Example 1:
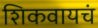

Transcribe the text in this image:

शिकवायचं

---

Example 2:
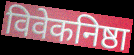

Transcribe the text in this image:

विवेकनिष्ठा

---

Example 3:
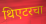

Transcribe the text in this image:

थिएटरचा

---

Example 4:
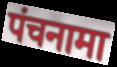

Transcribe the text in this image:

पंचनामा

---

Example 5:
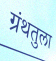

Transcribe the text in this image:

ग्रंथतुला